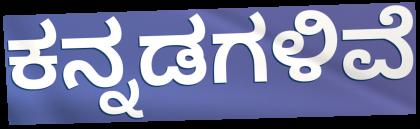
ಕನ್ನಡಗಳಿವೆ